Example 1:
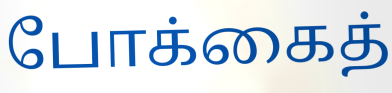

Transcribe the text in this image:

போக்கைத்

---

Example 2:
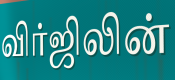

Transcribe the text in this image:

விர்ஜிலின்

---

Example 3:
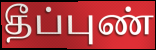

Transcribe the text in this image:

தீப்புண்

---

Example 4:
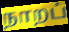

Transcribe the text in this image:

நாறப்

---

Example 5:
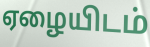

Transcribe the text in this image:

ஏழையிடம்